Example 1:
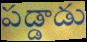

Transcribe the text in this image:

పడ్డాడు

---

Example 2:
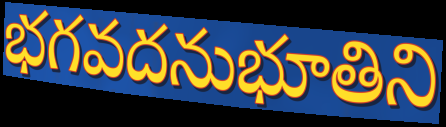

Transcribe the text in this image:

భగవదనుభూతిని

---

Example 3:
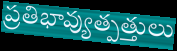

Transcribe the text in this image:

ప్రతిభావ్యుత్పత్తులు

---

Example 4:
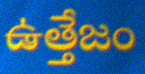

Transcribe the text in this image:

ఉత్తేజం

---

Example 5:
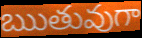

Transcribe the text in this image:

ఋతువుగా